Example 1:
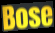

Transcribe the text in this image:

Bose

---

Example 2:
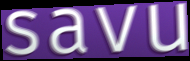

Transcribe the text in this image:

savu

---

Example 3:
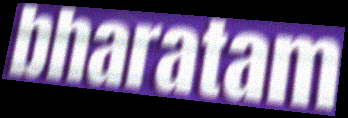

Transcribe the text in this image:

bharatam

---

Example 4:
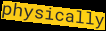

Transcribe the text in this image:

physically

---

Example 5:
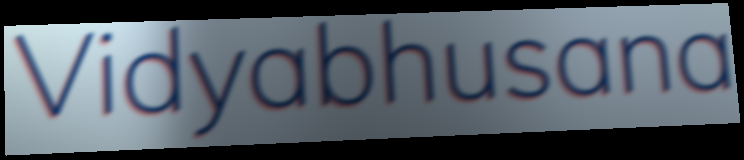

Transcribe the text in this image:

Vidyabhusana